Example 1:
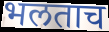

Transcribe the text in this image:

भलताच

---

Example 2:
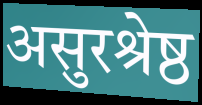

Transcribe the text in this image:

असुरश्रेष्ठ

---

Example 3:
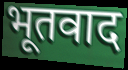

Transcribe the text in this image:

भूतवाद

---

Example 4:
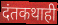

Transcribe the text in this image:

दंतकथाही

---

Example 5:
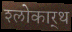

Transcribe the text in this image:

श्लोकार्थ